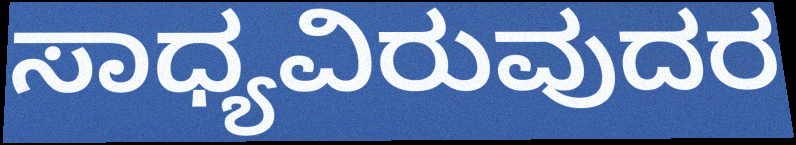
ಸಾಧ್ಯವಿರುವುದರ